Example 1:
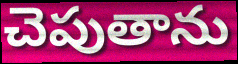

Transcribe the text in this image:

చెపుతాను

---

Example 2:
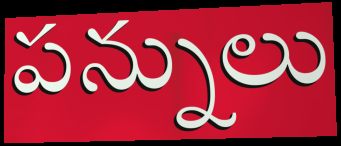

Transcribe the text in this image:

పన్నులు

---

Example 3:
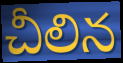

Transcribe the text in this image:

చీలిన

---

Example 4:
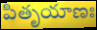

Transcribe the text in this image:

పితృయాణః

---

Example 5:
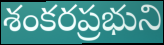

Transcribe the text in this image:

శంకరప్రభుని